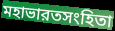
মহাভারতসংহিতা